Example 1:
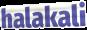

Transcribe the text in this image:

halakali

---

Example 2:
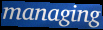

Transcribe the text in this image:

managing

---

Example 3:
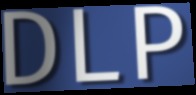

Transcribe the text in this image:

DLP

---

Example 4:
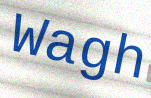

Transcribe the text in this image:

Wagh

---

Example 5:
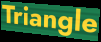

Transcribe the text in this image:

Triangle